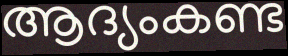
ആദ്യംകണ്ട